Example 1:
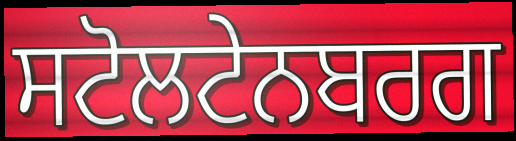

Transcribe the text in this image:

ਸਟੋਲਟੇਨਬਰਗ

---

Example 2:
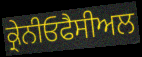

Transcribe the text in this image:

ਕ੍ਰੇਨੀਓਫੈਸੀਅਲ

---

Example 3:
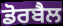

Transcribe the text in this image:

ਡੋਰਬੈਲ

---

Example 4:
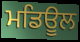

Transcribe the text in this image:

ਮਡਿਊਲ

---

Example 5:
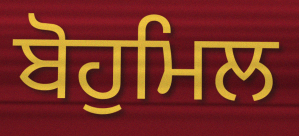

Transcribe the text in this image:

ਬੋਹੁਮਿਲ